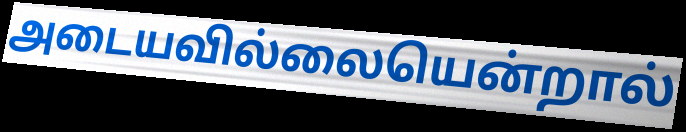
அடையவில்லையென்றால்